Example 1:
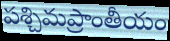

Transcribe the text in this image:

పశ్చిమప్రాంతీయం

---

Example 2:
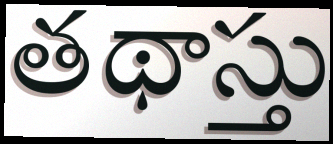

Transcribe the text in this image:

తథాస్తు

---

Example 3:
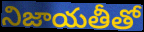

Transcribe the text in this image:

నిజాయతీతో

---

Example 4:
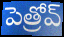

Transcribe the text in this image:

పెత్రోవ్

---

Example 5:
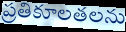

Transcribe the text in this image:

ప్రతికూలతలను